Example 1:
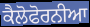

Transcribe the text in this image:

ਕੈਲੋਫੋਰਨੀਆ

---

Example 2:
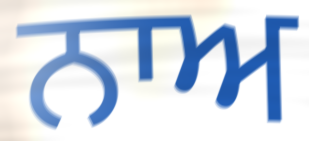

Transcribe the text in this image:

ਨਾਅ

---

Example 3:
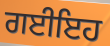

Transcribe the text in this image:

ਗਈਇਹ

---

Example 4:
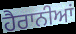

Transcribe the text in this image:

ਹੈਰਾਨੀਆਂ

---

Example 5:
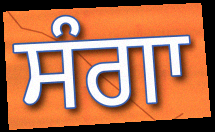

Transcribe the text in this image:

ਸੰਗਾ